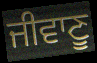
ਜੀਵਾਣੂ